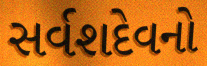
સર્વશદેવનો